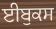
ਈਬੁਕਸ